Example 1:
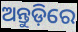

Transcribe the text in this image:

ଅନ୍ତୁଡ଼ିରେ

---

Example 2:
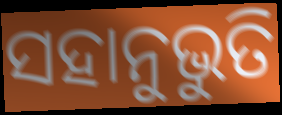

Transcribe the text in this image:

ସହାନୁଭୁତି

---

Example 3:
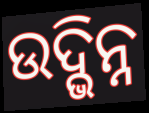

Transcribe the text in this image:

ଉଦ୍ଭିନ୍ନ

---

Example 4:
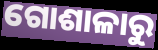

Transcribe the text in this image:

ଗୋଶାଳାରୁ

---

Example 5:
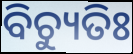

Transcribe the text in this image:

ବିଚ୍ୟୁତିଃ